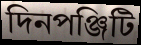
দিনপঞ্জিটি